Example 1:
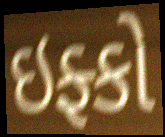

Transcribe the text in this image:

ઇફ્કો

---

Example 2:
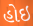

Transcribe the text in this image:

હોઇ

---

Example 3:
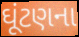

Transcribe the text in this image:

ઘૂંટણના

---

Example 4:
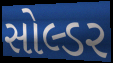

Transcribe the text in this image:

સોલ્ડર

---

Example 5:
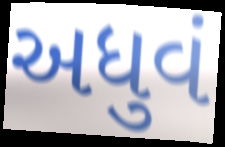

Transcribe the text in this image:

અધુવં